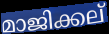
മാജിക്കല്